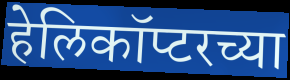
हेलिकॉप्टरच्या